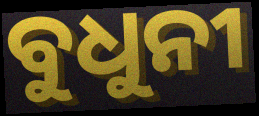
ବୁଧୁନୀ